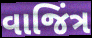
વાજિંત્ર